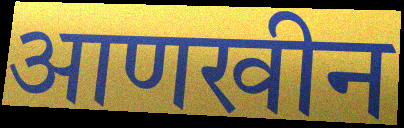
आणखीन